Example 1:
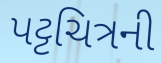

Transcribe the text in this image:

પટ્ટચિત્રની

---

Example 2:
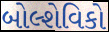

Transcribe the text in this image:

બોલ્શેવિકો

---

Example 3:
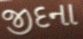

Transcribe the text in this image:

જીદના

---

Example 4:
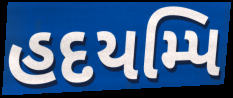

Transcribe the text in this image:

હદયમ્પિ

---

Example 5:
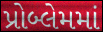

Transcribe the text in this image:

પ્રોબ્લેમમાં